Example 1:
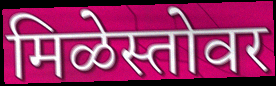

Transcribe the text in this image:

मिळेस्तोवर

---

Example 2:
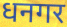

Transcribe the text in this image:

धनगर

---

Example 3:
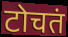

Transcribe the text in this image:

टोचतं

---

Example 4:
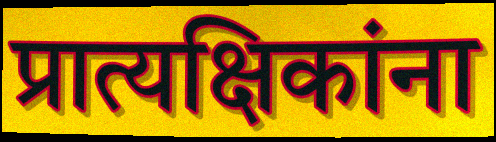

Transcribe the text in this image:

प्रात्यक्षिकांना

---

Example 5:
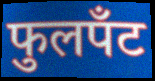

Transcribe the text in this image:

फुलपँट